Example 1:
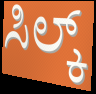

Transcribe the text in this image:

ಸಿಲ್ಕ್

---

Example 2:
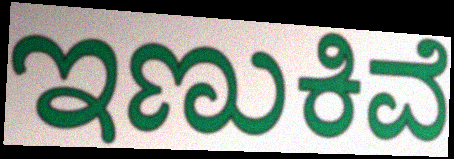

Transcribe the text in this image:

ಇಣುಕಿವೆ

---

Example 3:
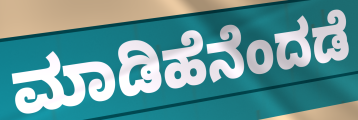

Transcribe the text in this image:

ಮಾಡಿಹೆನೆಂದಡೆ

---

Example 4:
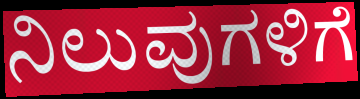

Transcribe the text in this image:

ನಿಲುವುಗಳಿಗೆ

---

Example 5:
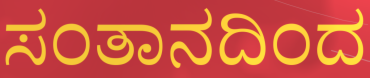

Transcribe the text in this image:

ಸಂತಾನದಿಂದ